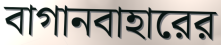
বাগানবাহারের